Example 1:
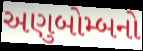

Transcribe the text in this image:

અણુબોમ્બનો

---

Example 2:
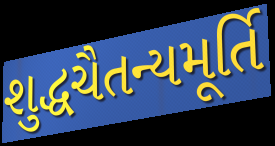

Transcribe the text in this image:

શુદ્ધચૈતન્યમૂર્તિ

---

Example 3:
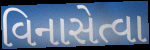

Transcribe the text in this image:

વિનાસેત્વા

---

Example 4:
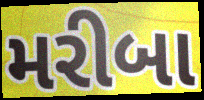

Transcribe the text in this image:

મરીબા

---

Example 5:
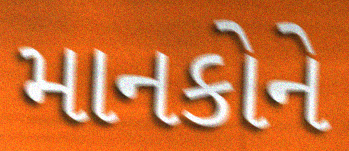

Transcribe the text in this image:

માનકોને